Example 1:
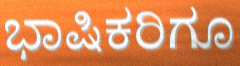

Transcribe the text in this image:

ಭಾಷಿಕರಿಗೂ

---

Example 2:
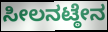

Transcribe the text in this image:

ಸೀಲನಟ್ಠೇನ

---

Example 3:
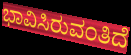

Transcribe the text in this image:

ಭಾವಿಸಿರುವಂತಿದೆ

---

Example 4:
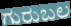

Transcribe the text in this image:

ಗುರುಬಲ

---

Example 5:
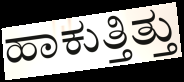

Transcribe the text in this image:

ಹಾಕುತ್ತಿತ್ತು